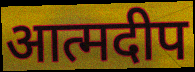
आत्मदीप